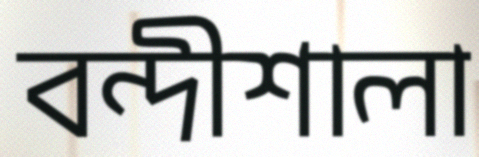
বন্দীশালা